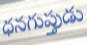
ధనగుప్తుడు